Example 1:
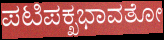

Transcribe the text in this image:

ಪಟಿಪಕ್ಖಭಾವತೋ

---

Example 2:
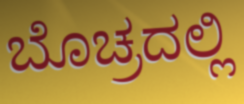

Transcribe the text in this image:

ಬೊಚ್ರದಲ್ಲಿ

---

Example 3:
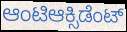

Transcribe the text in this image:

ಆಂಟಿಆಕ್ಸಿಡೆಂಟ್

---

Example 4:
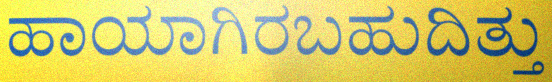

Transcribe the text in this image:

ಹಾಯಾಗಿರಬಹುದಿತ್ತು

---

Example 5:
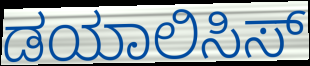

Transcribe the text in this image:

ಡಯಾಲಿಸಿಸ್